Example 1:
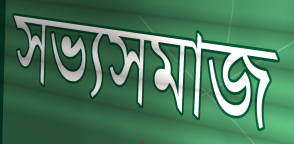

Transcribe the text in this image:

সভ্যসমাজ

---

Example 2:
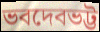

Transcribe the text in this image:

ভবদেবভট্ট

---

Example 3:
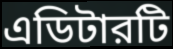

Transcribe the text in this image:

এডিটারটি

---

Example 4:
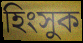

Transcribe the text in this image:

হিংসুক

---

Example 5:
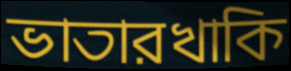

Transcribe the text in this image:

ভাতারখাকি